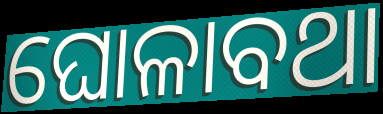
ଘୋଳାବଥା